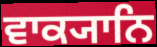
ਵਾਕ੍ਯਾਨਿ